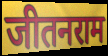
जीतनराम